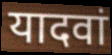
यादवां